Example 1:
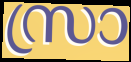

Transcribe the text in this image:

സ്രാ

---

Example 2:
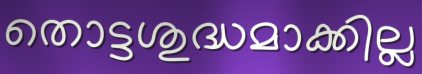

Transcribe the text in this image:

തൊട്ടശുദ്ധമാക്കില്ല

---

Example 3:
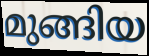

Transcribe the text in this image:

മുങ്ങിയ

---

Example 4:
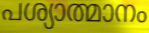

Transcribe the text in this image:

പശ്യാത്മാനം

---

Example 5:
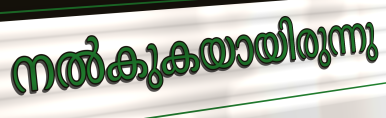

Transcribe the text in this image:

നൽകുകയായിരുന്നു